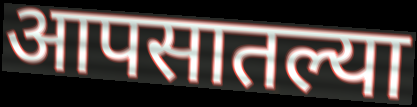
आपसातल्या